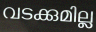
വടക്കുമില്ല